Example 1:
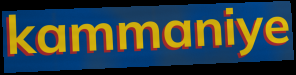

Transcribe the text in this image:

kammaniye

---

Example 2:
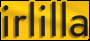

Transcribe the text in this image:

irlilla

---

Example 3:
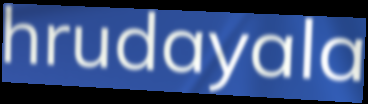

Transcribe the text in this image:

hrudayala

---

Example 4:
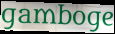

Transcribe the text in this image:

gamboge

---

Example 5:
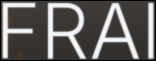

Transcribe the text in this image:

FRAI